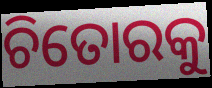
ଚିତୋରକୁ